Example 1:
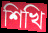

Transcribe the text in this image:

শিখি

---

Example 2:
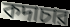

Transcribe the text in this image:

কদাচার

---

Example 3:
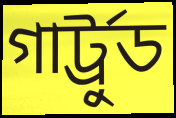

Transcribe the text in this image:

গার্ট্রুড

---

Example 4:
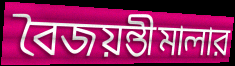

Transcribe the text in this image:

বৈজয়ন্তীমালার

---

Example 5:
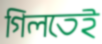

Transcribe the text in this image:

গিলতেই